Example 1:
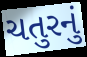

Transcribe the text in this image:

ચતુરનું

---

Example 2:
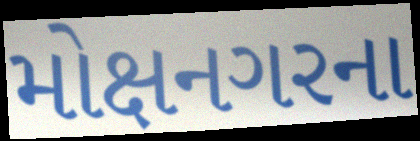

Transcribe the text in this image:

મોક્ષનગરના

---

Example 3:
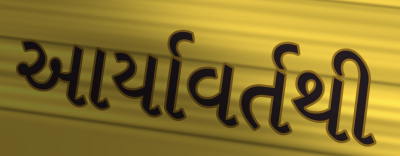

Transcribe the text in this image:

આર્યાવર્તથી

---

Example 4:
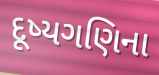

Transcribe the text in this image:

દૂષ્યગણિના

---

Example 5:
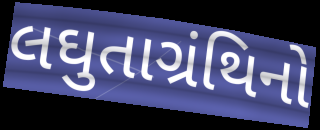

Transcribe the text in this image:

લઘુતાગ્રંથિનો